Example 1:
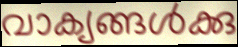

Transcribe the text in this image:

വാക്യങ്ങൾക്കു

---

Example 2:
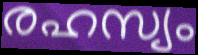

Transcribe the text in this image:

രഹസ്യം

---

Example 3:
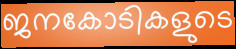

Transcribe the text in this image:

ജനകോടികളുടെ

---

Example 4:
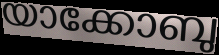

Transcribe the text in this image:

യാക്കോബു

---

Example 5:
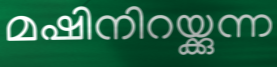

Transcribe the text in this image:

മഷിനിറയ്ക്കുന്ന